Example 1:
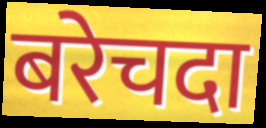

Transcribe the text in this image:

बरेचदा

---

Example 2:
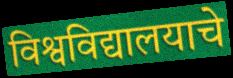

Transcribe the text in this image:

विश्वविद्यालयाचे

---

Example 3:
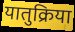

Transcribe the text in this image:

यातुक्रिया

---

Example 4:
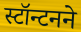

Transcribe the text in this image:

स्टॉन्टनने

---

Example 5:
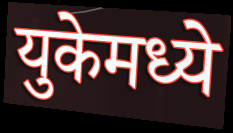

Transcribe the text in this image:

युकेमध्ये